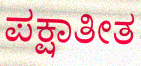
ಪಕ್ಷಾತೀತ